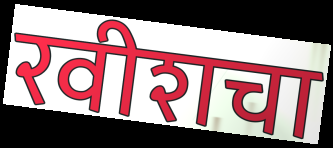
रवीशचा